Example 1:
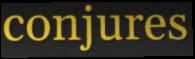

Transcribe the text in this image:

conjures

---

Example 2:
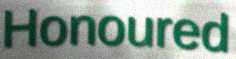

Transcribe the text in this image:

Honoured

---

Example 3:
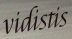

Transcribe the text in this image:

vidistis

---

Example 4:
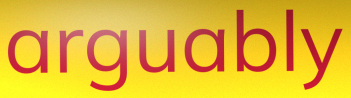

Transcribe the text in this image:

arguably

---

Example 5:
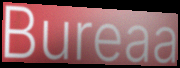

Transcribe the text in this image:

Bureaa